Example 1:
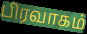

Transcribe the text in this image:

பிரவாகம்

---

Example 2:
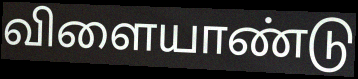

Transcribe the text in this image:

விளையாண்டு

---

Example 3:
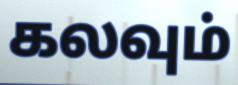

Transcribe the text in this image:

கலவும்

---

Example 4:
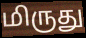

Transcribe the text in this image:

மிருது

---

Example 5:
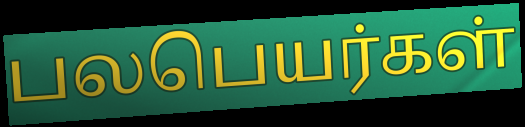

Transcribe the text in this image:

பலபெயர்கள்